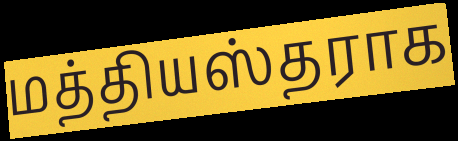
மத்தியஸ்தராக